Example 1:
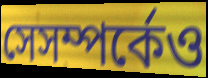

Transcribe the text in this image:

সেসম্পর্কেও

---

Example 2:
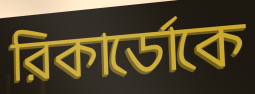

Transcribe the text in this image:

রিকার্ডোকে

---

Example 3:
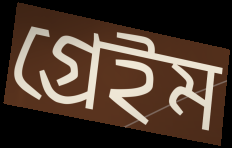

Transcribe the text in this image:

গ্রেইম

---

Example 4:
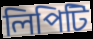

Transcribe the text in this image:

লিপিটি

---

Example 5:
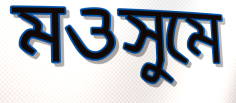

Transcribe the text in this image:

মওসুমে